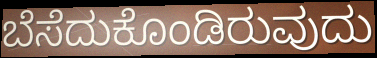
ಬೆಸೆದುಕೊಂಡಿರುವುದು